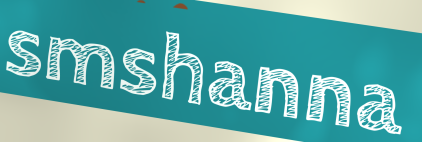
smshanna